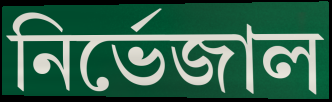
নির্ভেজাল